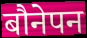
बौनेपन